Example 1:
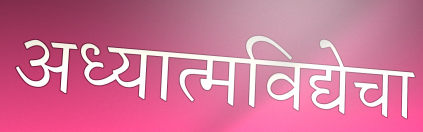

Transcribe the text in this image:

अध्यात्मविद्येचा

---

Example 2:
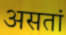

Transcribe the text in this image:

असतां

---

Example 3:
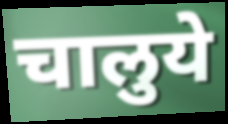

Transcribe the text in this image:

चालुये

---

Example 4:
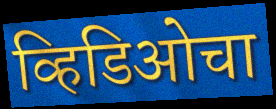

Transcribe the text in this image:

व्हिडिओचा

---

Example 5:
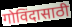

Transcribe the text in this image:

गोविंदासाठी